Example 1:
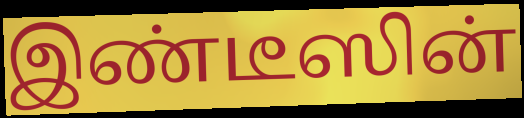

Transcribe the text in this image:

இண்டீஸின்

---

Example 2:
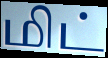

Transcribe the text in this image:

மிட்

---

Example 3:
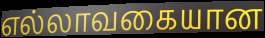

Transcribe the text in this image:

எல்லாவகையான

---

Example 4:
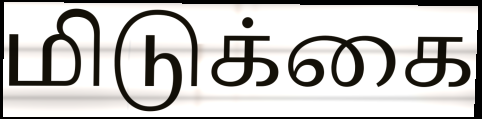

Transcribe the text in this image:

மிடுக்கை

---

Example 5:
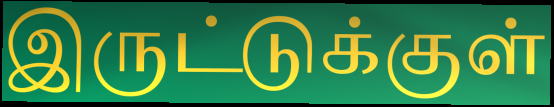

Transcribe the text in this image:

இருட்டுக்குள்